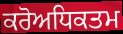
ਕਰੋਅਧਿਕਤਮ